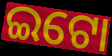
ଇଟୋ